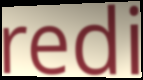
redi